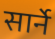
सार्ने